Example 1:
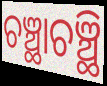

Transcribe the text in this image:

ଚଞ୍ଛାଚଞ୍ଛି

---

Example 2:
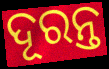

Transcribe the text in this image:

ଦୂରନ୍ତ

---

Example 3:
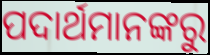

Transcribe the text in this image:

ପଦାର୍ଥମାନଙ୍କରୁ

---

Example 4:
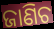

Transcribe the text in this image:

ଜାଣିଚ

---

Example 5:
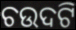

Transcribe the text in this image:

ଚଉଦଟି